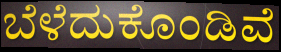
ಬೆಳೆದುಕೊಂಡಿವೆ